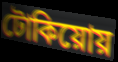
টোকিয়োয়